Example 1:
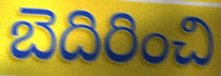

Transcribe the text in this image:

బెదిరించి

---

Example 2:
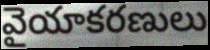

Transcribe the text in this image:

వైయాకరణులు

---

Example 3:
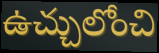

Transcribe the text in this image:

ఉచ్చులోంచి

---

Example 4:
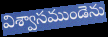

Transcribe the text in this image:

విశ్వాసముండెను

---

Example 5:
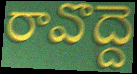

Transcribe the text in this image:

రావొద్దె